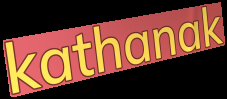
kathanak